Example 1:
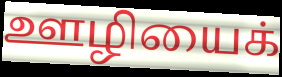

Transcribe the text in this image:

ஊழியைக்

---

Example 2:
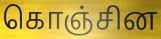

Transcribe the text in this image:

கொஞ்சின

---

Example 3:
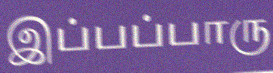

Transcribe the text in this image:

இப்பப்பாரு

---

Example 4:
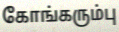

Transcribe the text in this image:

கோங்கரும்பு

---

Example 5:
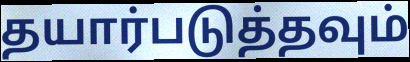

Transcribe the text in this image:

தயார்படுத்தவும்